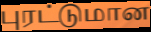
புரட்டுமான